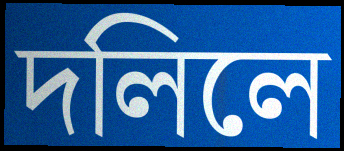
দলিলে